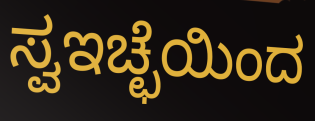
ಸ್ವಇಚ್ಛೆಯಿಂದ